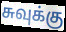
சுவுக்கு